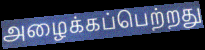
அழைக்கப்பெற்றது